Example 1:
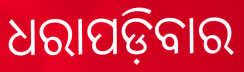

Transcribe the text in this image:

ଧରାପଡ଼ିବାର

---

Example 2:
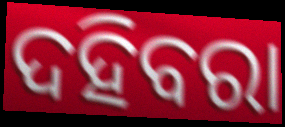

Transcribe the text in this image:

ଦହିବରା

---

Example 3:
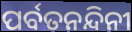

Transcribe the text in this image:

ପର୍ବତନନ୍ଦିନୀ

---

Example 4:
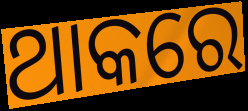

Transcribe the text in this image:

ଥାକରେ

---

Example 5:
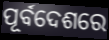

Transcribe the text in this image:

ପୂର୍ବଦେଶରେ